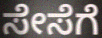
ಸೇಸೆಗೆ